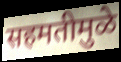
सहमतीमुळे